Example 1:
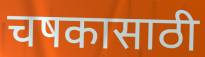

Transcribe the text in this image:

चषकासाठी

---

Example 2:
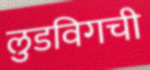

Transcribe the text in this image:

लुडविगची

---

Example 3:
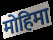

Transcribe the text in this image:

मोहिमा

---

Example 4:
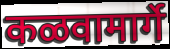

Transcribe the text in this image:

कळवामार्गे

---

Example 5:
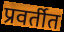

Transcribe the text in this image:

प्रवर्तीत